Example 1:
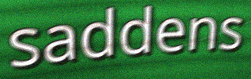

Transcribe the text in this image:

saddens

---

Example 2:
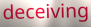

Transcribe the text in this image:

deceiving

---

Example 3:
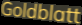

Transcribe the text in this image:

Goldblatt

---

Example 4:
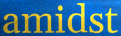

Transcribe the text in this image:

amidst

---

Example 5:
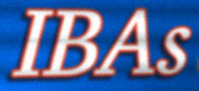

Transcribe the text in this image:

IBAs